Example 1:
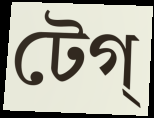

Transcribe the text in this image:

টেগ্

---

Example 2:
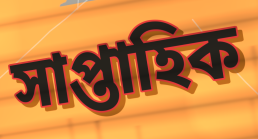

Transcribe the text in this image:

সাপ্তাহিক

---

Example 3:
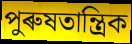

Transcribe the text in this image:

পুৰুষতান্ত্ৰিক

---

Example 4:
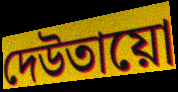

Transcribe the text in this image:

দেউতায়ো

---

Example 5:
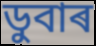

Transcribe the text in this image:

ডুবাৰ